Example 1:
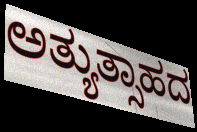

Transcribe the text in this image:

ಅತ್ಯುತ್ಸಾಹದ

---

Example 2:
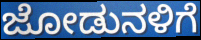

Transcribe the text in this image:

ಜೋಡುನಳಿಗೆ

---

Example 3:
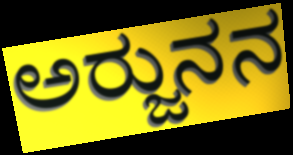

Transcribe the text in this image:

ಅರ್‍ಜುನನ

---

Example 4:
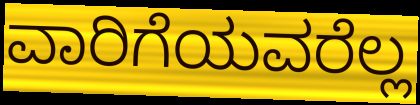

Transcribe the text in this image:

ವಾರಿಗೆಯವರೆಲ್ಲ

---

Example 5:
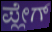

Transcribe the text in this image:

ಪ್ಲೇಗ್